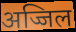
अज्जिल